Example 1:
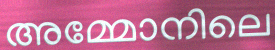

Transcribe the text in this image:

അമ്മോനിലെ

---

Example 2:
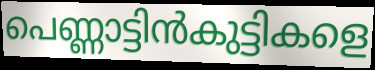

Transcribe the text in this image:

പെണ്ണാട്ടിൻകുട്ടികളെ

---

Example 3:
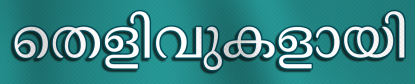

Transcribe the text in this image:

തെളിവുകളായി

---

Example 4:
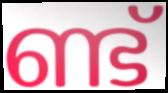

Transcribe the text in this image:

ണ്ട്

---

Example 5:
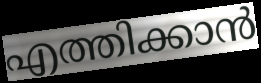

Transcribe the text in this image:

എത്തിക്കാൻ